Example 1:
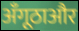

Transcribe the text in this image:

अँगूठाऔर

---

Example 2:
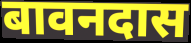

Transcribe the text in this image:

बावनदास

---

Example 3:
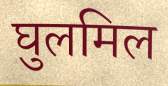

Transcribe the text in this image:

घुलमिल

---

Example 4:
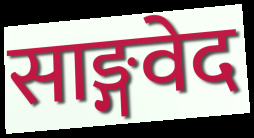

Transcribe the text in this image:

साङ्गवेद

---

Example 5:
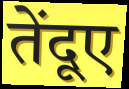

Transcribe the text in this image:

तेंदूए